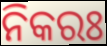
ନିକରଃ